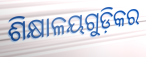
ଶିକ୍ଷାଳୟଗୁଡ଼ିକର